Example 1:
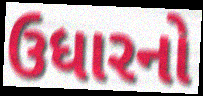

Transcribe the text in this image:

ઉધારનો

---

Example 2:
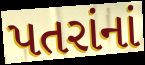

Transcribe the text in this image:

પતરાંનાં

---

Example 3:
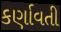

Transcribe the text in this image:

કર્ણાવતી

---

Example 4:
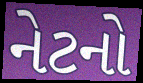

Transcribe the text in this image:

નેટનો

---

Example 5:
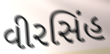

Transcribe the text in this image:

વીરસિંહ